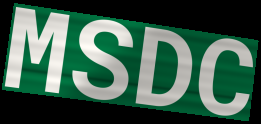
MSDC